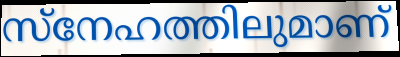
സ്നേഹത്തിലുമാണ്